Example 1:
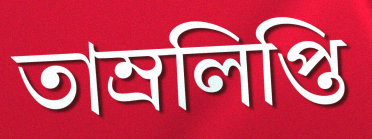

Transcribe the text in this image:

তাম্রলিপ্তি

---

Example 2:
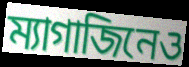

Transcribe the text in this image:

ম্যাগাজিনেও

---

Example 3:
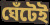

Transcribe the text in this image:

ঘেঁটেই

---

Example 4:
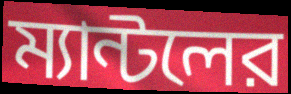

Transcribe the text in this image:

ম্যান্টলের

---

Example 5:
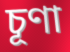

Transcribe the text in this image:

চূণা